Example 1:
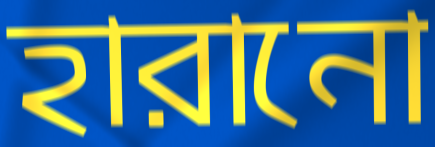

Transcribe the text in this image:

হারানো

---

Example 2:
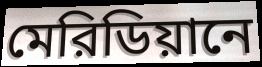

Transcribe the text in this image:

মেরিডিয়ানে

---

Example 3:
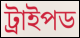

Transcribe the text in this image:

ট্রাইপড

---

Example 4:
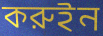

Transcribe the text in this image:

করুইন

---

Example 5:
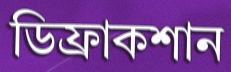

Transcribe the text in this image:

ডিফ্রাকশান